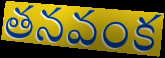
తనవంక